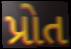
પ્રોત